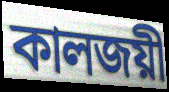
কালজয়ী